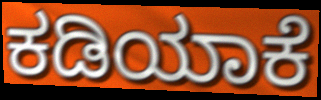
ಕಡಿಯಾಕೆ